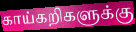
காய்கறிகளுக்கு